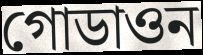
গোডাওন